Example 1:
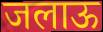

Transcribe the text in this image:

जलाऊ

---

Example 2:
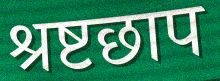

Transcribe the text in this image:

श्रष्टछाप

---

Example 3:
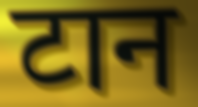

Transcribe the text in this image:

टान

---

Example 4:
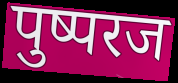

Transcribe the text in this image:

पुष्परज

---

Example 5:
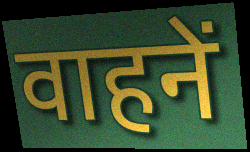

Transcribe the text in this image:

वाहनें